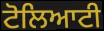
ਟੋਲਿਆਟੀ